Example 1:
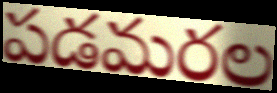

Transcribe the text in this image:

పడమరల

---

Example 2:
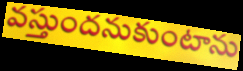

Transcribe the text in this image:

వస్తుందనుకుంటాను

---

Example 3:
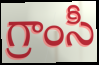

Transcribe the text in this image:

గ్రాంసీ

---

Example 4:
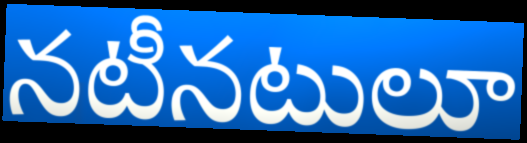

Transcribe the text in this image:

నటీనటులూ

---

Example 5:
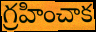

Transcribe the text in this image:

గ్రహించాక